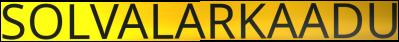
SOLVALARKAADU